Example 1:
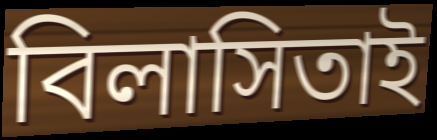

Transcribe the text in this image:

বিলাসিতাই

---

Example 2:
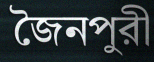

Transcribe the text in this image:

জৈনপুরী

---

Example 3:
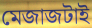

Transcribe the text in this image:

মেজাজটাই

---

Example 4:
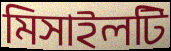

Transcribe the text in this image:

মিসাইলটি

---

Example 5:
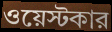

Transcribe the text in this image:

ওয়েস্টকার